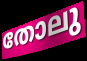
തോലു